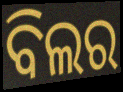
ବିଲର